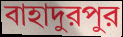
বাহাদুরপুর